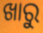
ଖାରୁ